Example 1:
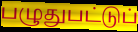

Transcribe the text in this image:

பழுதுபட்டுப்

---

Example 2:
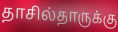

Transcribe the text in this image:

தாசில்தாருக்கு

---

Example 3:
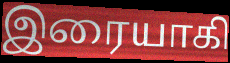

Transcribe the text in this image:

இரையாகி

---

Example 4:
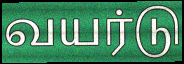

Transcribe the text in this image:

வயர்டு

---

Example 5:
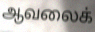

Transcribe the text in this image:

ஆவலைக்